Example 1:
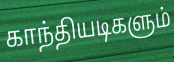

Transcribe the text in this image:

காந்தியடிகளும்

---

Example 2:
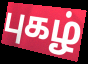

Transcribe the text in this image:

புகழ்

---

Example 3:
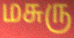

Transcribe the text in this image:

மசுரு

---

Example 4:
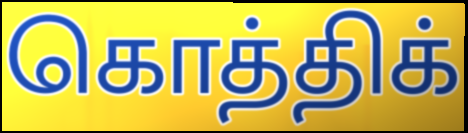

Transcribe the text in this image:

கொத்திக்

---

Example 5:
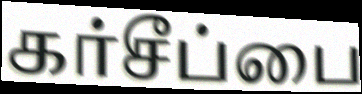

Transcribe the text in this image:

கர்சீப்பை